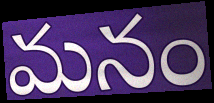
మనం